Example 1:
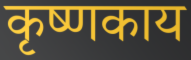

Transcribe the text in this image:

कृष्णकाय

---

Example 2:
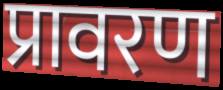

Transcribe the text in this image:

प्रावरण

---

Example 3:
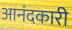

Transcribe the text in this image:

आनंदकारी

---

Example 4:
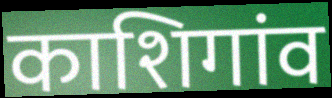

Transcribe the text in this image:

काशिगांव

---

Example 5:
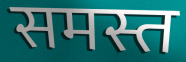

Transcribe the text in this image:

समस्त